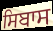
ਸਿਬਾਸ